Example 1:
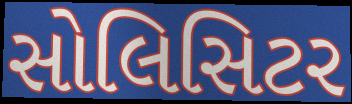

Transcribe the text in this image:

સોલિસિટર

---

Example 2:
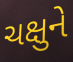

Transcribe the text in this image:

ચક્ષુને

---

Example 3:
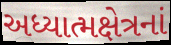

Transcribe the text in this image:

અધ્યાત્મક્ષેત્રનાં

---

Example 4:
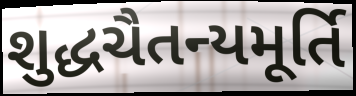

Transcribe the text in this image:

શુદ્ધચૈતન્યમૂર્તિ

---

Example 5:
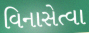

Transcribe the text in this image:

વિનાસેત્વા